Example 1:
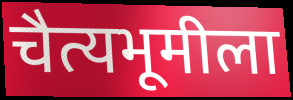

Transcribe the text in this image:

चैत्यभूमीला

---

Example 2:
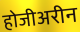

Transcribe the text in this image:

होजीअरीन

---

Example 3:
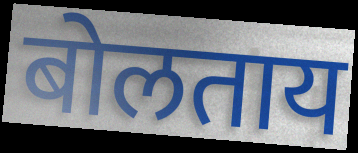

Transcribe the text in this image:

बोलताय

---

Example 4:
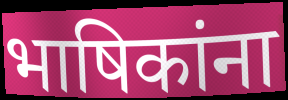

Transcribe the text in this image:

भाषिकांना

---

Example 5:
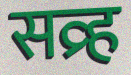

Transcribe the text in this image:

सव्र्ह